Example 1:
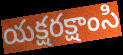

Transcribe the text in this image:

యక్షరక్షాంసి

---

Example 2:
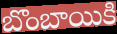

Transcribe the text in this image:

బొంబాయికి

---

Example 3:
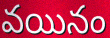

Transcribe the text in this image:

వయినం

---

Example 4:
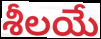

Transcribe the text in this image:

శీలయే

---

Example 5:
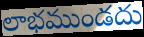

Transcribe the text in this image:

లాభముండదు